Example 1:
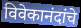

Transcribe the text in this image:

विवेकानंदांचे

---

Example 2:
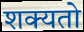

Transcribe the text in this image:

शक्यतो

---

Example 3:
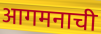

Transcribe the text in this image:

आगमनाची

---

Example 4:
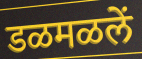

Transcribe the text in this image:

डळमळलें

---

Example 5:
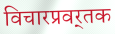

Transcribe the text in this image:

विचारप्रवर्तक